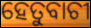
ହେତୁବାଚୀ